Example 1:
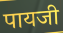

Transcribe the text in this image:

पायजी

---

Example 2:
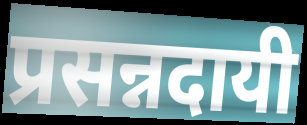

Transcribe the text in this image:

प्रसन्नदायी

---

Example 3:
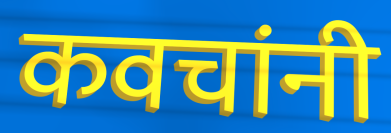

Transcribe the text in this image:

कवचांनी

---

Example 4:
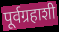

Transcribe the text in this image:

पूर्वग्रहाशी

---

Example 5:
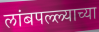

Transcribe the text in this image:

लांबपल्ल्याच्या